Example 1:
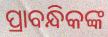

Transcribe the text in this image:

ପ୍ରାବନ୍ଧିକଙ୍କ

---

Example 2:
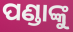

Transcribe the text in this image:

ପଣ୍ଡାଙ୍କୁ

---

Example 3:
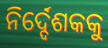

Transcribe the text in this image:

ନିର୍ଦ୍ଦେଶକକୁ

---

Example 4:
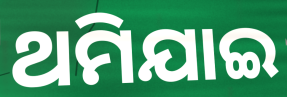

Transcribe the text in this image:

ଥମିଯାଇ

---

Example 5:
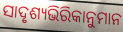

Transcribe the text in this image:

ସାଦୃଶ୍ଯଭିରିକାନୁମାନ